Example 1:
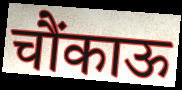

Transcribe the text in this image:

चौंकाऊ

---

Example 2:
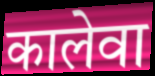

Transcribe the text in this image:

कालेवा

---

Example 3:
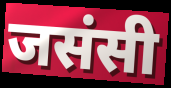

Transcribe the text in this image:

जसंसी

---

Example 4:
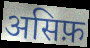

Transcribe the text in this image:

असिफ़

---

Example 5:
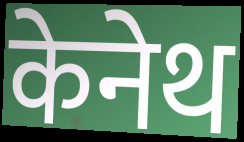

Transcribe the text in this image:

केनेथ